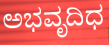
ಅಭವೃದಿಧ